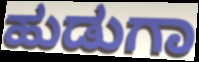
ಹುಡುಗಾ